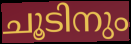
ചൂടിനും